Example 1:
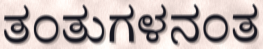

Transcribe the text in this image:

ತಂತುಗಳನಂತ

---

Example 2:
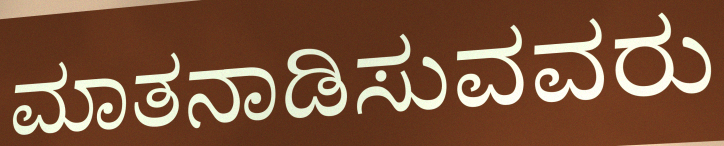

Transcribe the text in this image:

ಮಾತನಾಡಿಸುವವರು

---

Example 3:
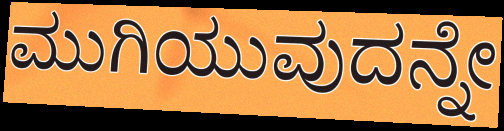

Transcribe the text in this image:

ಮುಗಿಯುವುದನ್ನೇ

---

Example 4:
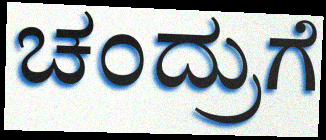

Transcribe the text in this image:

ಚಂದ್ರುಗೆ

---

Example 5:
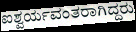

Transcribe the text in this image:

ಐಶ್ವರ್ಯವಂತರಾಗಿದ್ದರು